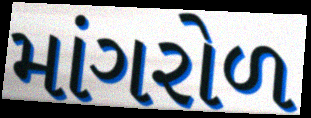
માંગરોળ